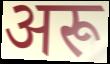
अरू